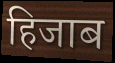
हिजाब